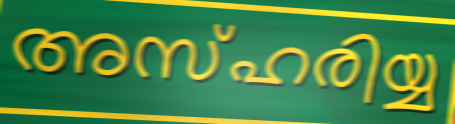
അസ്ഹരിയ്യ